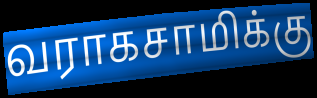
வராகசாமிக்கு